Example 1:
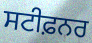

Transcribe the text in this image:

ਸਟੀਫ਼ਨਰ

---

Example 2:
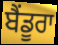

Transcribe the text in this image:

ਬੈਂਡੂਰਾ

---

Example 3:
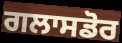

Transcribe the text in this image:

ਗਲਾਸਡੋਰ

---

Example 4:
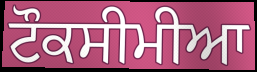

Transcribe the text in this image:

ਟੌਕਸੀਮੀਆ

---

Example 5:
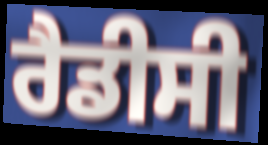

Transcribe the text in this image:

ਰੈਡੀਸੀ